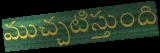
ముచ్చటిస్తుంది